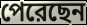
পেরেছেন